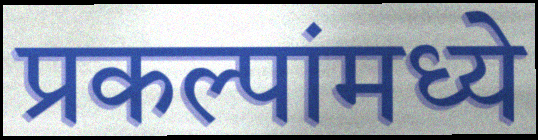
प्रकल्पांमध्ये